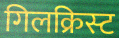
गिलक्रिस्‍ट